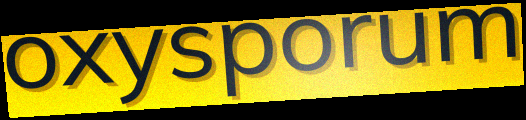
oxysporum